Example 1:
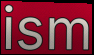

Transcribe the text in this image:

ism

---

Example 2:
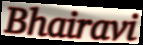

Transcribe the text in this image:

Bhairavi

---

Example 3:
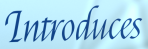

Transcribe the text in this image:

Introduces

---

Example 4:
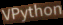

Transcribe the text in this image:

VPython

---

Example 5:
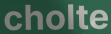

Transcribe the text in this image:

cholte